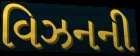
વિઝનની